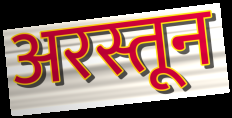
अरस्तून